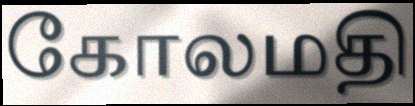
கோலமதி